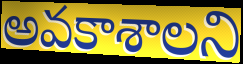
అవకాశాలని